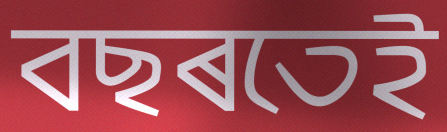
বছৰতেই